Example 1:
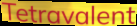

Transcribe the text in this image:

Tetravalent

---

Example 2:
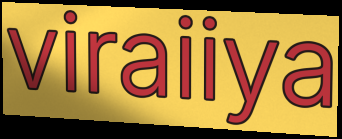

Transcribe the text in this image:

viraiiya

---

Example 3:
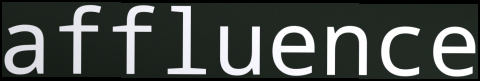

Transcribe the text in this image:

affluence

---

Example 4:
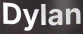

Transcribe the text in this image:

Dylan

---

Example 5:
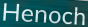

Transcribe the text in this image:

Henoch